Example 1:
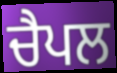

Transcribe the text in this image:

ਚੈਪਲ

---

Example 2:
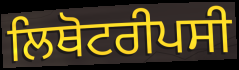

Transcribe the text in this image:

ਲਿਥੋਟਰੀਪਸੀ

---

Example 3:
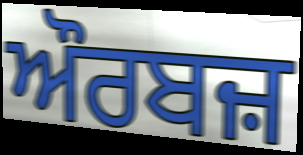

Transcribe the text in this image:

ਔਰਬਜ਼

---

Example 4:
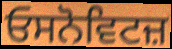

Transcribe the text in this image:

ਓਸਨੋਵਿਟਜ਼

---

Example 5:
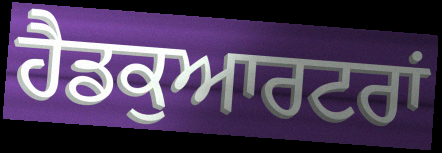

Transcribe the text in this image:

ਹੈਡਕੁਆਰਟਰਾਂ